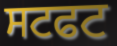
ਸਟਫਟ